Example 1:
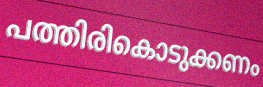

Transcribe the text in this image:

പത്തിരികൊടുക്കണം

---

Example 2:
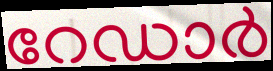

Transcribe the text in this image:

റേഡാർ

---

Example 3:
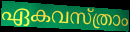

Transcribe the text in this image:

ഏകവസ്ത്രാം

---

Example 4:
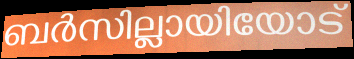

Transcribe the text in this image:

ബർസില്ലായിയോട്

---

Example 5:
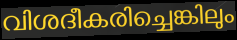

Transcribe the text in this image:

വിശദീകരിച്ചെങ്കിലും